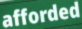
afforded